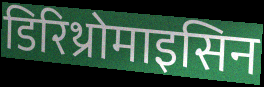
डिरिथ्रोमाइसिन